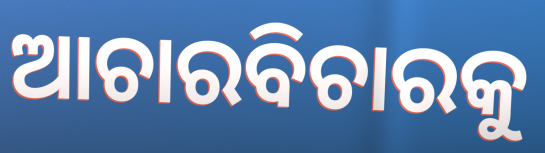
ଆଚାରବିଚାରକୁ